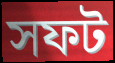
সফট